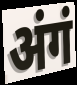
अंगं